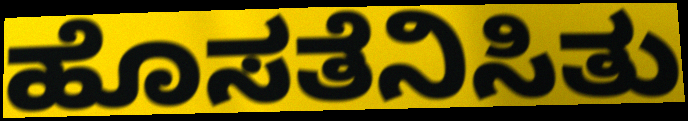
ಹೊಸತೆನಿಸಿತು